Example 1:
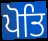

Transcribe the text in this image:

ਪੋਤਿ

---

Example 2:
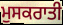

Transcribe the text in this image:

ਮੁਸਕਰਾਤੀ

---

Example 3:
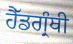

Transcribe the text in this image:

ਹੈੱਡਗ੍ਰੰਥੀ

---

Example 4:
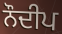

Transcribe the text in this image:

ਨੌਦੀਪ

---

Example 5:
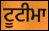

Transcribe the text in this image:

ਟੂਟੀਮਾ